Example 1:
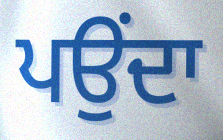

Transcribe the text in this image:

ਪਉਂਦਾ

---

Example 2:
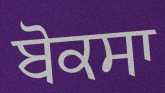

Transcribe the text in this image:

ਬੋਕਸਾ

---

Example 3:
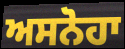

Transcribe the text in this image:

ਅਸਨੋਹਾ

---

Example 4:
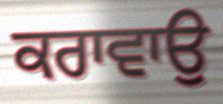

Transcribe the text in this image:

ਕਰਾਵਾਉ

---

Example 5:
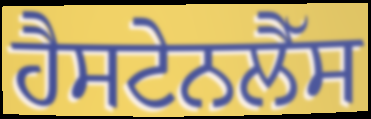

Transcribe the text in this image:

ਹੈਸਟੇਨਲੈੱਸ